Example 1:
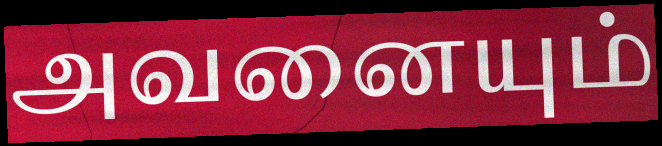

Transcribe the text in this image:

அவனையும்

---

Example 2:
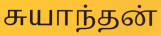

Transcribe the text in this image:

சுயாந்தன்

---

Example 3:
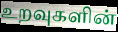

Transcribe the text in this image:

உறவுகளின்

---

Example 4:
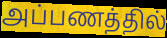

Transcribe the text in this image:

அப்பணத்தில்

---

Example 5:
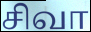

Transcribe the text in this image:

சிவா